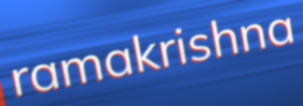
ramakrishna